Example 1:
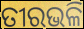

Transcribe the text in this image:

ତୀରଭଳି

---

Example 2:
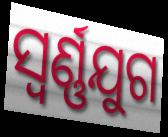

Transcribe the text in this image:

ସ୍ଵର୍ଣ୍ଣଯୁଗ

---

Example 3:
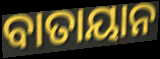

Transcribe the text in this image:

ବାତାୟାନ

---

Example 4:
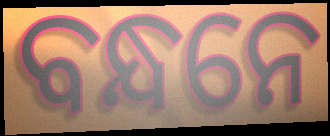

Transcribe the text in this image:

ବନ୍ଧନେ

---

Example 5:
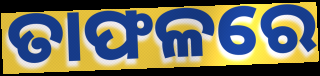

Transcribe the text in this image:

ତାଫଳରେ